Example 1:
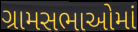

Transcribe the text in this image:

ગ્રામસભાઓમાં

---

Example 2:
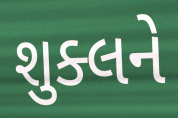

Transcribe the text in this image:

શુક્લને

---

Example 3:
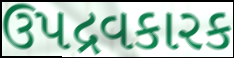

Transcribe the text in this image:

ઉપદ્રવકારક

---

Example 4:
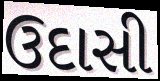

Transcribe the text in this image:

ઉદાસી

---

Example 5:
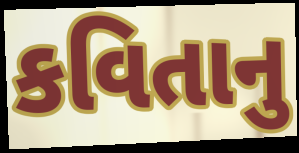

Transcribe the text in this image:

કવિતાનુ